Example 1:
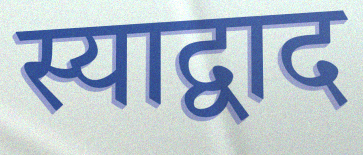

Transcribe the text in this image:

स्याद्वाद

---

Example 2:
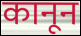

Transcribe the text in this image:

कानून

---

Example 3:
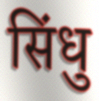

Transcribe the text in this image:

सिंधु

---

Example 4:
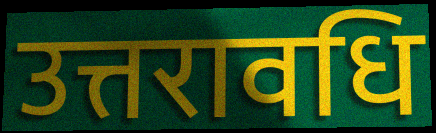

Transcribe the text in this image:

उत्तरावधि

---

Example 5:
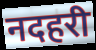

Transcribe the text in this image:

नदहरी